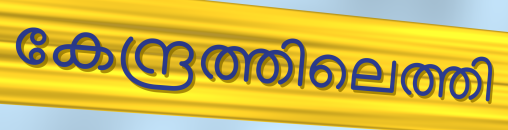
കേന്ദ്രത്തിലെത്തി